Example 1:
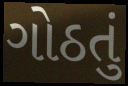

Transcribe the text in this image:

ગોઠતું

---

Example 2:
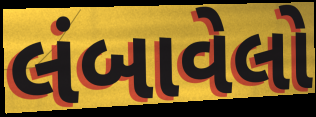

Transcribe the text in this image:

લંબાવેલો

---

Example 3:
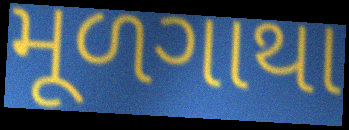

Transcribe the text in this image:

મૂળગાથા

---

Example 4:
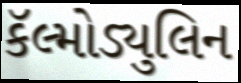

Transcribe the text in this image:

કૅલ્મોડ્યુલિન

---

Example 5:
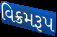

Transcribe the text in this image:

વિક્રમરૂપ